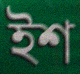
ইশ